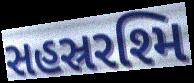
સહસ્રરશ્મિ